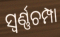
ସ୍ୱର୍ଣ୍ଣଚମ୍ପା